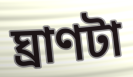
ঘ্রাণটা